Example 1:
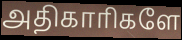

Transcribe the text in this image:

அதிகாரிகளே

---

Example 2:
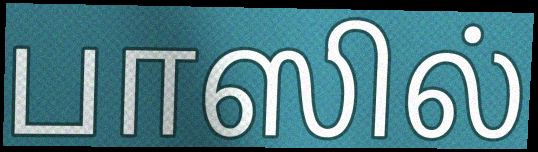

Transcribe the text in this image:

பாஸில்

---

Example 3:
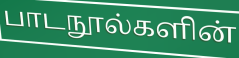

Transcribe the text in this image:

பாடநூல்களின்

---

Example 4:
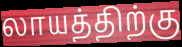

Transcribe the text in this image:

லாயத்திற்கு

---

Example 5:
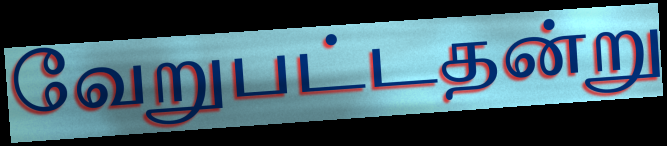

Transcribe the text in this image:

வேறுபட்டதன்று